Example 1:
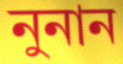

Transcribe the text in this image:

নুনান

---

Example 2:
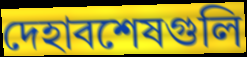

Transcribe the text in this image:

দেহাবশেষগুলি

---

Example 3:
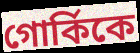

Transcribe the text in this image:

গোর্কিকে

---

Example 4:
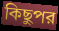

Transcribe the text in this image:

কিছুপর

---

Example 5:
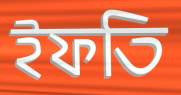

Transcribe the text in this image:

ইফতি